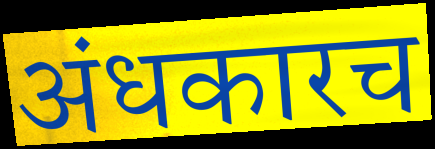
अंधकारच